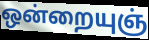
ஒன்றையுஞ்